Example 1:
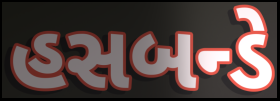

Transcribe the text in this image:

હસબન્ડે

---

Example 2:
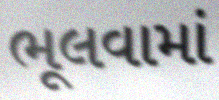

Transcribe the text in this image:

ભૂલવામાં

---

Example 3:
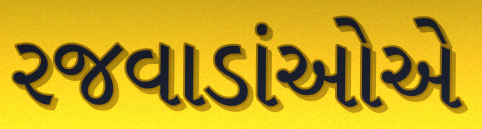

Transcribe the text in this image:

રજવાડાંઓએ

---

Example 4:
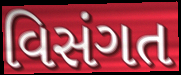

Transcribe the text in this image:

વિસંગત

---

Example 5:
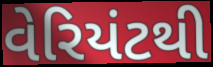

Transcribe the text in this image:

વેરિયંટથી